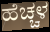
ಹೆಚ್ಚಳ